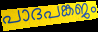
പാദപങ്കജം